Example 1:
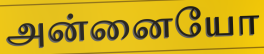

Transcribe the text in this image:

அன்னையோ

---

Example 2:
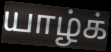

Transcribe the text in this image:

யாழ்க்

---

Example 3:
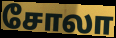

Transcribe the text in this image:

சோலா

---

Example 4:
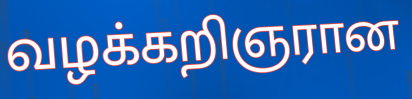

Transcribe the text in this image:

வழக்கறிஞரான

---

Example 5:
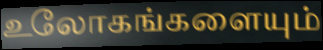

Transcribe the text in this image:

உலோகங்களையும்